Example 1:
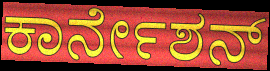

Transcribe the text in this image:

ಕಾರ್ನೇಶನ್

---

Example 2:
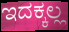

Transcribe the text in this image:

ಇದಕ್ಕಲ್ಲ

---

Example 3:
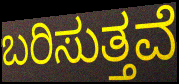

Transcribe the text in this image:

ಬರಿಸುತ್ತವೆ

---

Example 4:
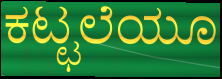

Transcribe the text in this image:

ಕಟ್ಟಲೆಯೂ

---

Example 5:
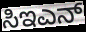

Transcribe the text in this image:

ಸಿಇಎನ್